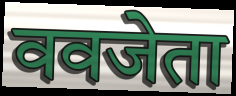
ववजेता